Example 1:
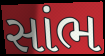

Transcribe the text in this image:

સાંભ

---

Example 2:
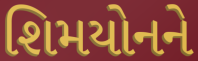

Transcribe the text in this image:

શિમયોનને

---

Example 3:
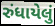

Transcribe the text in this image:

રુંધાયેલું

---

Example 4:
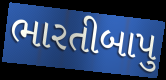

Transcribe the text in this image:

ભારતીબાપુ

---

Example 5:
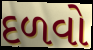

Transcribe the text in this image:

દળવો